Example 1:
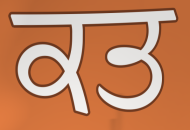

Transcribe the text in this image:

ਕਤ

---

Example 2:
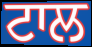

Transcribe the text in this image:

ਟਾਲ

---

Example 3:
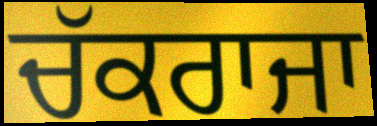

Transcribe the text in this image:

ਚੱਕਰਾਜਾ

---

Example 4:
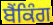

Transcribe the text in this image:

ਬੈਂਕਿੰਗ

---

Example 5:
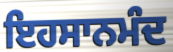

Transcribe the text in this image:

ਇਹਸਾਨਮੰਦ